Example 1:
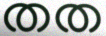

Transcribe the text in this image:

തത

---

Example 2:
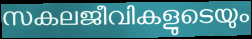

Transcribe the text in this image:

സകലജീവികളുടെയും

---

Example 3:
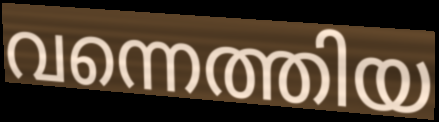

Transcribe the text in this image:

വന്നെത്തിയ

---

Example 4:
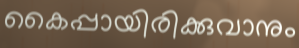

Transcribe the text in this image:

കൈപ്പായിരിക്കുവാനും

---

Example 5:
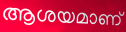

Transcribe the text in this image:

ആശയമാണ്